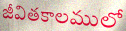
జీవితకాలములో